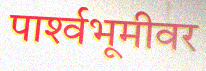
पार्श्‍वभूमीवर